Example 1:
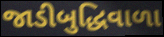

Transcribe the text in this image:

જાડીબુદ્ધિવાળા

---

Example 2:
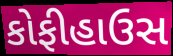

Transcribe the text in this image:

કોફીહાઉસ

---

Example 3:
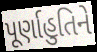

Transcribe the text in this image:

પૂર્ણાહુતિને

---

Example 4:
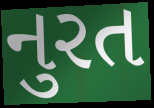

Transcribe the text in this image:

નુરત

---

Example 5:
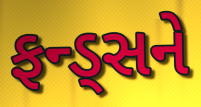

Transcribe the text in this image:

ફન્ડ્સને